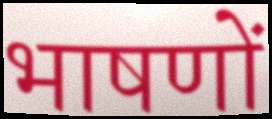
भाषणों